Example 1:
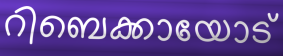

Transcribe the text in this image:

റിബെക്കായോട്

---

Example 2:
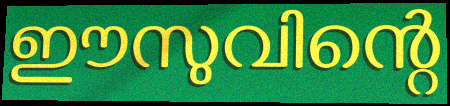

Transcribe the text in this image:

ഈസുവിന്റെ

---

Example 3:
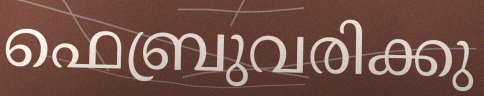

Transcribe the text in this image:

ഫെബ്രുവരിക്കു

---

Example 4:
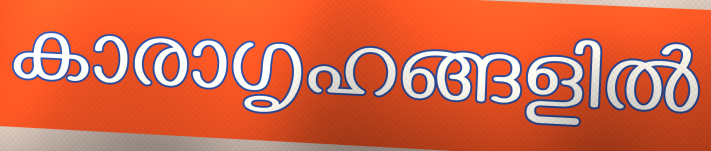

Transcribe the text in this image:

കാരാഗൃഹങ്ങളിൽ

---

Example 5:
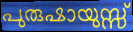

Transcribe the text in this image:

പുരുഷായുസ്സ്